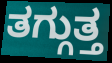
ತಗ್ಗುತ್ತ